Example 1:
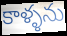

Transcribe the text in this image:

కాళ్ళను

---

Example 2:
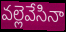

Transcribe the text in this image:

వల్లెవేసినా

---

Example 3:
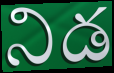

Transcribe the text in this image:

నిడ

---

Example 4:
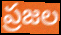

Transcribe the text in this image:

ప్రజల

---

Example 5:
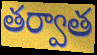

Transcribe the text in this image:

తర్వాత